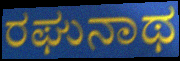
ರಘುನಾಥ